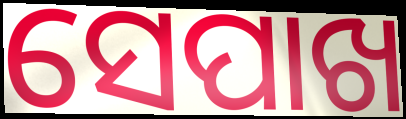
ସେପାଖ